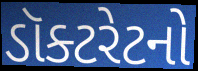
ડૉક્ટરેટનો